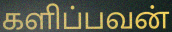
களிப்பவன்